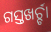
ଗସ୍ତଖର୍ଚ୍ଚା